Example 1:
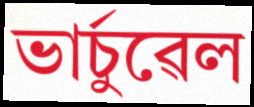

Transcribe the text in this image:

ভাৰ্চুৱেল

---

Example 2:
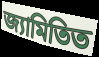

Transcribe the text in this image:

জ্যামিতিত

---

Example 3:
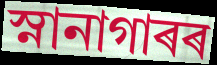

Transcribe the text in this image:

স্নানাগাৰৰ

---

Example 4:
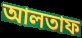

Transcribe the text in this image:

আলতাফ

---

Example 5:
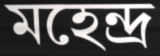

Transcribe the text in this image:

মহেন্দ্ৰ